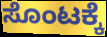
ಸೊಂಟಕ್ಕೆ